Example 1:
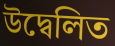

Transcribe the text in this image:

উদ্বেলিত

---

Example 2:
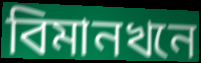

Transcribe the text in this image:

বিমানখনে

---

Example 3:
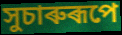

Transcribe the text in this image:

সুচাৰুৰূপে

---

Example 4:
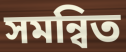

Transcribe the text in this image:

সমন্বিত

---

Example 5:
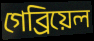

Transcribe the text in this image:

গেব্ৰিয়েল